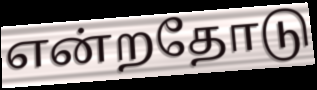
என்றதோடு